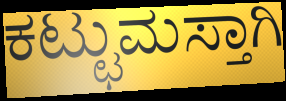
ಕಟ್ಟುಮಸ್ತಾಗಿ